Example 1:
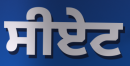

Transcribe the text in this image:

ਸੀਏਟ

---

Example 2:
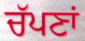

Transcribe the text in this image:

ਚੱਪਣਾਂ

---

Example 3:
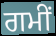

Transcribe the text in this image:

ਗਮੀਂ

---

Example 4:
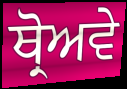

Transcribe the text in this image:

ਥ੍ਰੋਅਵੇ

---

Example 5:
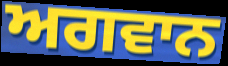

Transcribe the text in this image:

ਅਗਵਾਨ